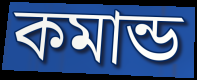
কমান্ড